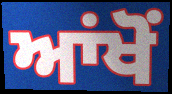
ਆਂਖੋਂ